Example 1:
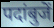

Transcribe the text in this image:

पदांबुजें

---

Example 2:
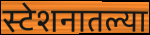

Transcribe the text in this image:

स्टेशनातल्या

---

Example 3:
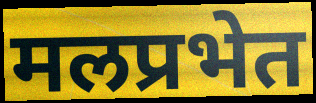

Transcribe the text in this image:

मलप्रभेत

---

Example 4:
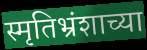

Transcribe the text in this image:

स्मृतिभ्रंशाच्या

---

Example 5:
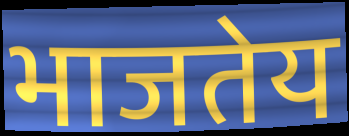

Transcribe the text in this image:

भाजतेय